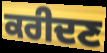
ਕਰੀਦਣ